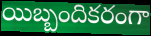
యిబ్బందికరంగా